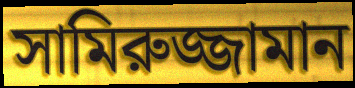
সামিরুজ্জামান